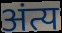
अंत्य